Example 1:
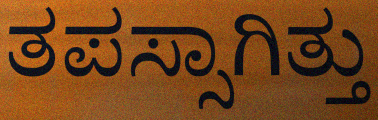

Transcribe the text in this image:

ತಪಸ್ಸಾಗಿತ್ತು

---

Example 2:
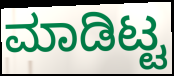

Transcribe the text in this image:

ಮಾಡಿಟ್ಟ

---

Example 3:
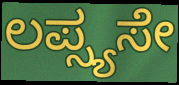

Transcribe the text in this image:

ಲಪ್ಸ್ಯಸೇ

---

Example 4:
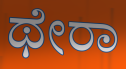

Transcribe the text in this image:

ಥೇರಾ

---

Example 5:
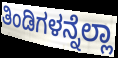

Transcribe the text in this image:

ತಿಂಡಿಗಳನ್ನೆಲ್ಲಾ